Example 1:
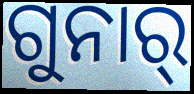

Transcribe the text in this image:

ଗୁନାର୍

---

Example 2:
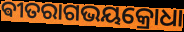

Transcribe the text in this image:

ଵୀତରାଗଭୟକ୍ରୋଧା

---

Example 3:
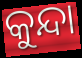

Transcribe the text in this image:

କୁନ୍ଦା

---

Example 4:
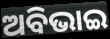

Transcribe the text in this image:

ଅବିଭାଇ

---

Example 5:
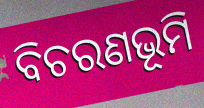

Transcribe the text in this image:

ବିଚରଣଭୂମି